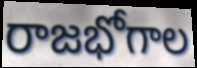
రాజభోగాల